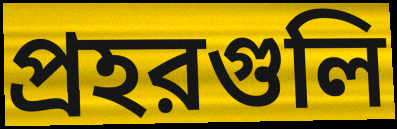
প্রহরগুলি